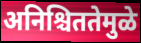
अनिश्चिततेमुळे